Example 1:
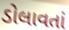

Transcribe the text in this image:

ડોલાવતાં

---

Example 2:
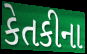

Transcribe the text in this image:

કેતકીના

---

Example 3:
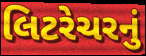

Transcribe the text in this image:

લિટરેચરનું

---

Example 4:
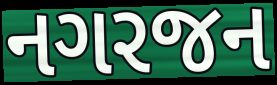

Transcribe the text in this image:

નગરજન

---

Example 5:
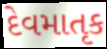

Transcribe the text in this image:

દેવમાતૃક